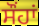
ਸੌਂਹਾਂ